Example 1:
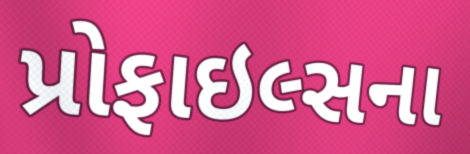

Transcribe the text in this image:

પ્રોફાઇલ્સના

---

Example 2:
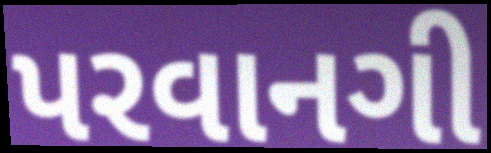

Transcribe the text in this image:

પરવાનગી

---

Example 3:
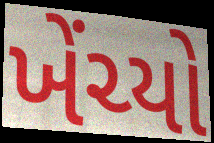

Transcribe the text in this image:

ખેંચ્યો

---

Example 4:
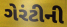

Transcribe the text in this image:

ગેરંટીની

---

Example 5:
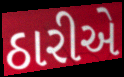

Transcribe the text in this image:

ઠારીએ